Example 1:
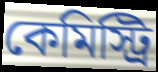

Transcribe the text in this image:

কেমিস্ট্রি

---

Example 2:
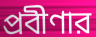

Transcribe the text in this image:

প্রবীণার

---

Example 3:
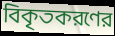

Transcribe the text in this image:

বিকৃতকরণের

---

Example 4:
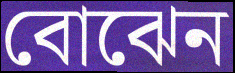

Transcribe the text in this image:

বোঝেন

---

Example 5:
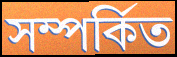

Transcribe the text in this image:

সম্পর্কিত